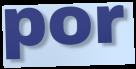
por